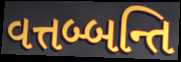
વત્તબ્બન્તિ